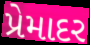
પ્રેમાદર